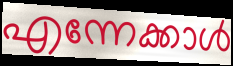
എന്നേക്കാൾ